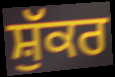
ਸ਼ੁੱਕਰ